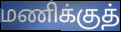
மணிக்குத்